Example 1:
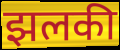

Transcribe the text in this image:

झलकी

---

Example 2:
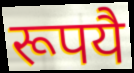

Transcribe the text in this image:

रूपयै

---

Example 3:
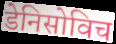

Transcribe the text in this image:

डेनिसोविच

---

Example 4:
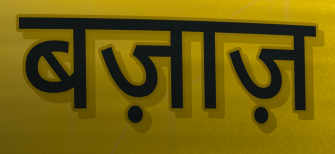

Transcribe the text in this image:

बज़ाज़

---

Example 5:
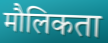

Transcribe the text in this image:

मौलिकता